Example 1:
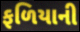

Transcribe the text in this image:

ફળિયાની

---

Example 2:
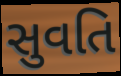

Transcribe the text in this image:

સુવતિ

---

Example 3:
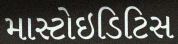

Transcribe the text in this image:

માસ્ટોઇડિટિસ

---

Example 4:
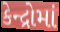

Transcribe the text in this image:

કેન્દ્રોમાં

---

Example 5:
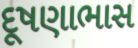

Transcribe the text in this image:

દૂષણાભાસ